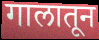
गालातून